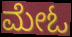
ಮೇಓ